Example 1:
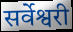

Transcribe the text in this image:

सर्वेश्वरी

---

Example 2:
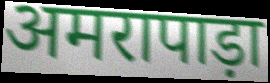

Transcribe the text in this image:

अमरापाड़ा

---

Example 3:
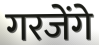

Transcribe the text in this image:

गरजेंगे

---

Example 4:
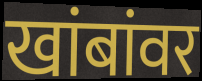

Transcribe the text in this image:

खांबांवर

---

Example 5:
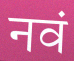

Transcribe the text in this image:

नवं